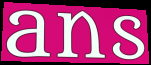
ans